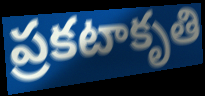
ప్రకటాకృతి